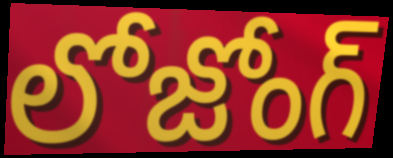
లోజోంగ్